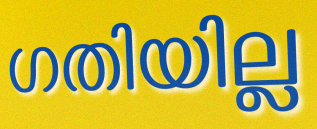
ഗതിയില്ല